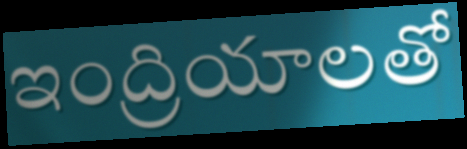
ఇంద్రియాలతో